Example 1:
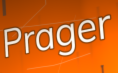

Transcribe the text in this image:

Prager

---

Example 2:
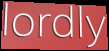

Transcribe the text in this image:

lordly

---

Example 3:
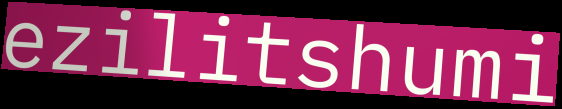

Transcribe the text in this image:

ezilitshumi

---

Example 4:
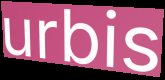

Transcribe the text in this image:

urbis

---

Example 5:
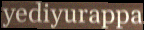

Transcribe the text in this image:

yediyurappa